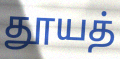
தூயத்